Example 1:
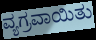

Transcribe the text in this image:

ವ್ಯಗ್ರವಾಯಿತು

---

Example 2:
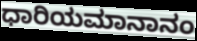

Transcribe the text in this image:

ಧಾರಿಯಮಾನಾನಂ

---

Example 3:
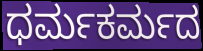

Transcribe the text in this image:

ಧರ್ಮಕರ್ಮದ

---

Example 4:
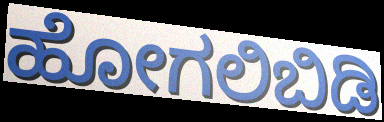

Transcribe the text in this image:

ಹೋಗಲಿಬಿಡಿ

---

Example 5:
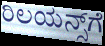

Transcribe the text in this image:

ರಿಲಯನ್ಸ್‌ಗೆ